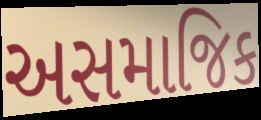
અસમાજિક